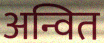
अन्वित